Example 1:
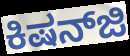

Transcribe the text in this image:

ಕಿಷನ್‌ಜಿ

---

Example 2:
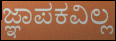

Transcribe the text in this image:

ಜ್ಞಾಪಕವಿಲ್ಲ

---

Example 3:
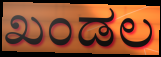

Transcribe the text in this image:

ಖಂಡಲ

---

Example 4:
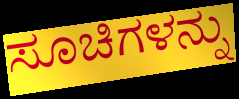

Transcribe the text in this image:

ಸೂಚಿಗಳನ್ನು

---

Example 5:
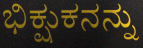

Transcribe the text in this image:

ಭಿಕ್ಷುಕನನ್ನು